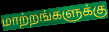
மாற்றங்களுக்கு